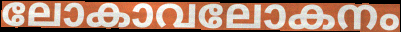
ലോകാവലോകനം